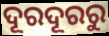
ଦୂରଦୂରରୁ